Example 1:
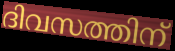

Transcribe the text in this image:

ദിവസത്തിന്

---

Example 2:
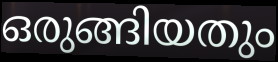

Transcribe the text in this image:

ഒരുങ്ങിയതും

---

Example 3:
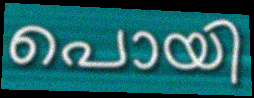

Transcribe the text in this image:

പൊയി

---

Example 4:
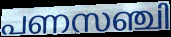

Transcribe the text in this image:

പണസഞ്ചി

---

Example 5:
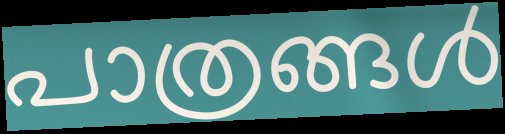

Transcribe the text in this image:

പാത്രങ്ങൾ